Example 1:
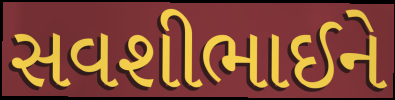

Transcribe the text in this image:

સવશીભાઈને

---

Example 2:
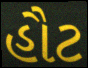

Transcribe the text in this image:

હૌટ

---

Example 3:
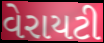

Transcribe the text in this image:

વેરાયટી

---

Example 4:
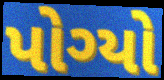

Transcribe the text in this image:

પોગ્યો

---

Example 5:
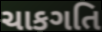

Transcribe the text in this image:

ચાકગતિ